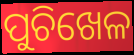
ପୁଚିଖେଳ